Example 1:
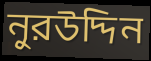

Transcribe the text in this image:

নুরউদ্দিন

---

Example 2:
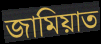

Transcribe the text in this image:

জামিয়াত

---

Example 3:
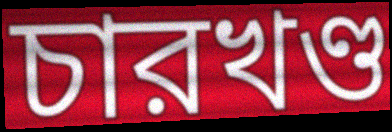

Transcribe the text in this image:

চারখণ্ড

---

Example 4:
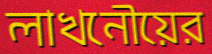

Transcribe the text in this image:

লাখনৌয়ের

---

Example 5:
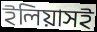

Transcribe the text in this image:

ইলিয়াসই